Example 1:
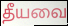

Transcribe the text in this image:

தீயவை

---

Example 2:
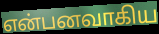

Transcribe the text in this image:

என்பனவாகிய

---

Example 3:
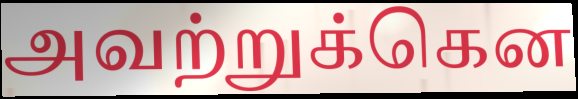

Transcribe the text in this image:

அவற்றுக்கென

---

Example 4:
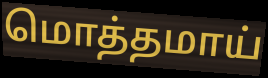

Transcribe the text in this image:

மொத்தமாய்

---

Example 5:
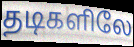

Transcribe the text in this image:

தடிகளிலே